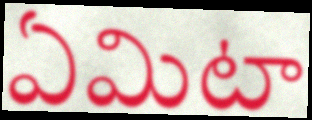
ఏమిటా